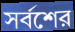
সর্বশের